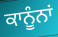
ਕਾਨੂੰਨਾਂ